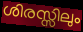
ശിരസ്സിലും